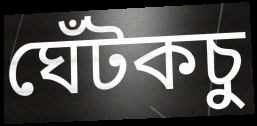
ঘেঁটকচু